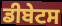
ਡੀਬੇਟਸ